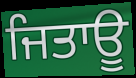
ਜਿਤਾਊ